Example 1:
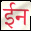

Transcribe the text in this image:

ईन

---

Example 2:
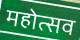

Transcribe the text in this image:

महोत्सव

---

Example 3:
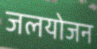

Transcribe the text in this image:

जलयोजन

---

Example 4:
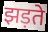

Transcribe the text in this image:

झड़ते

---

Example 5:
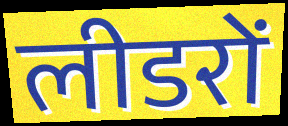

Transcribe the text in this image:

लीडरों